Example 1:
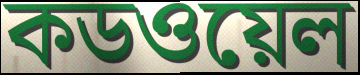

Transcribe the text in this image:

কডওয়েল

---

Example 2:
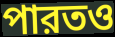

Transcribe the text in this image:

পারতও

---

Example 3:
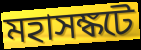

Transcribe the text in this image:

মহাসঙ্কটে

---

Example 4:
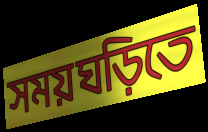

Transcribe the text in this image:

সময়ঘড়িতে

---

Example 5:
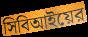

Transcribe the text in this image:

সিবিআইয়ের